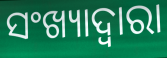
ସଂଖ୍ୟାଦ୍ୱାରା